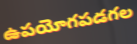
ఉపయోగపడగల